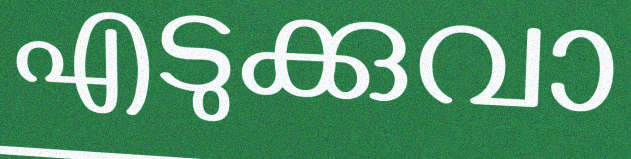
എടുക്കുവാ